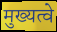
मुख्यत्वे